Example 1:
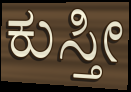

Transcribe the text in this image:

ಕುಸ್ತೀ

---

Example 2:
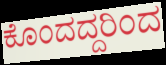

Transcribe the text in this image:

ಕೊಂದದ್ದರಿಂದ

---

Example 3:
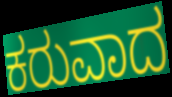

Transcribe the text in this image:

ಕರುವಾದ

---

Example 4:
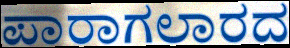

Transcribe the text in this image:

ಪಾರಾಗಲಾರದ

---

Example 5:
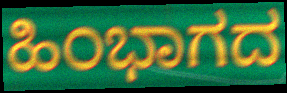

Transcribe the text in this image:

ಹಿಂಭಾಗದ